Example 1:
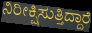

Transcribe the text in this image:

ನಿರೀಕ್ಷಿಸುತ್ತಿದ್ದಾರೆ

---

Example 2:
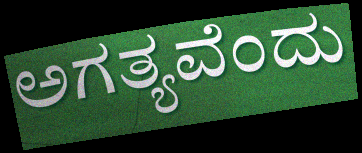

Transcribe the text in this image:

ಅಗತ್ಯವೆಂದು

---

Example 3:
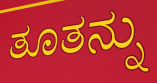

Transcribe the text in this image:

ತೂತನ್ನು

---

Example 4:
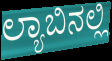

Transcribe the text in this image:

ಲ್ಯಾಬಿನಲ್ಲಿ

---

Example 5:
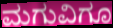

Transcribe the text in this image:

ಮಗುವಿಗೂ